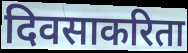
दिवसाकरिता